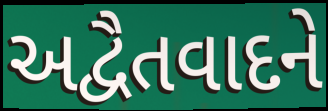
અદ્વૈતવાદને